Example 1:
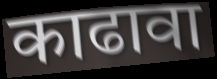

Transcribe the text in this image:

काढावा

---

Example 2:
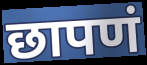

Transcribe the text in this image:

छापणं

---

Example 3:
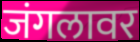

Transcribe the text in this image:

जंगलावर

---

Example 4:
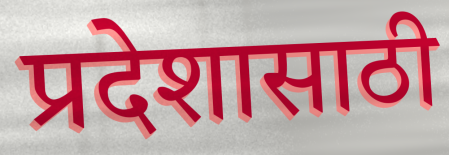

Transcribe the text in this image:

प्रदेशासाठी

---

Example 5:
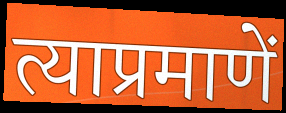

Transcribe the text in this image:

त्याप्रमाणें